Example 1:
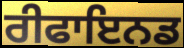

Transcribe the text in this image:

ਰੀਫਾਇਨਡ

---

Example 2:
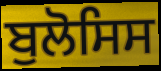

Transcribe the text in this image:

ਬੁਲੋਸਿਸ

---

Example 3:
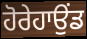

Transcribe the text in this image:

ਹੋਰੇਹਾਉਂਡ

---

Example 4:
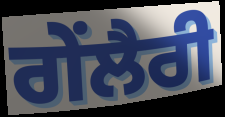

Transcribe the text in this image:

ਗੇਂਲੈਰੀ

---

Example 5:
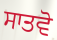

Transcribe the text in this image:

ਸਾਤਵੋ